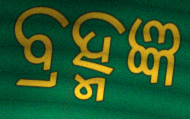
ବ୍ରହ୍ମଜ୍ଞ